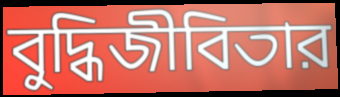
বুদ্ধিজীবিতার